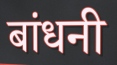
बांधनी